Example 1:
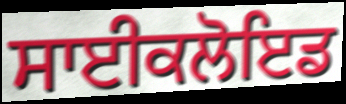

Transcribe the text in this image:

ਸਾਈਕਲੋਇਡ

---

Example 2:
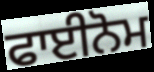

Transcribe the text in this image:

ਫਾਈਨੋਮ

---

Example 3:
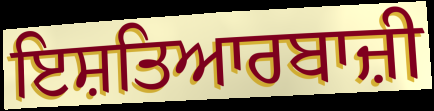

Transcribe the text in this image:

ਇਸ਼ਤਿਆਰਬਾਜ਼ੀ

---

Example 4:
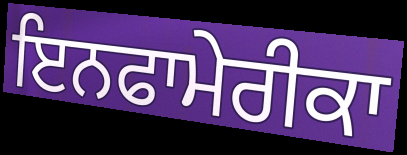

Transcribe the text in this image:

ਇਨਫਾਮੇਰੀਕਾ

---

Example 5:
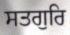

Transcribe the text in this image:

ਸਤਗੁਰਿ